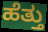
ಹೆತ್ತು